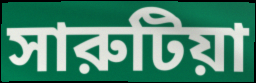
সারুটিয়া